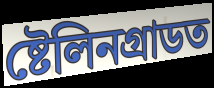
ষ্টেলিনগ্ৰাডত